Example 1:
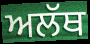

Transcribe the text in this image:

ਅਲੱਥ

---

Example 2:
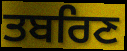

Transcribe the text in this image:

ਤਬਰਿਣ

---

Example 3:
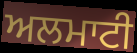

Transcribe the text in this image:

ਅਲਮਾਟੀ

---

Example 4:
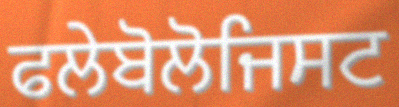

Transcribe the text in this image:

ਫਲੇਬੋਲੋਜਿਸਟ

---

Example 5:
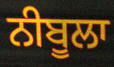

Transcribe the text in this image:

ਨੀਬੂਲਾ